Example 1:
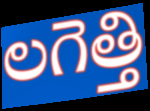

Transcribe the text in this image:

లగెత్తి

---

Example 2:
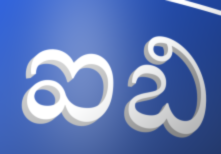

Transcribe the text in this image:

ఐబి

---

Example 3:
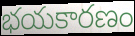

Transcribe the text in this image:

భయకారణం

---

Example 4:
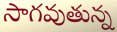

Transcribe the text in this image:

సాగవుతున్న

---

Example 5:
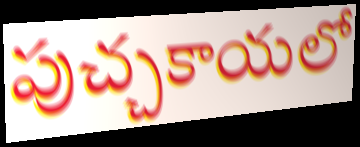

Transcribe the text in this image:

పుచ్చకాయలో